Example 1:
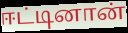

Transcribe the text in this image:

ஈட்டினான்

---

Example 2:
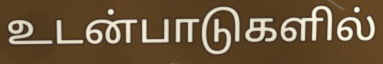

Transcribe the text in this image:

உடன்பாடுகளில்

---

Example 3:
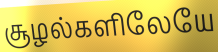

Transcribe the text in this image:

சூழல்களிலேயே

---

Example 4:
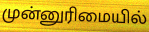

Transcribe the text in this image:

முன்னுரிமையில்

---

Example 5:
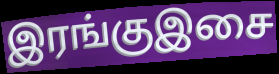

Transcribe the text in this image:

இரங்குஇசை